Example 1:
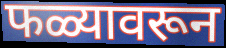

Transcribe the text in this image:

फळ्यावरून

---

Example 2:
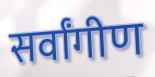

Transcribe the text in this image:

सर्वांगीण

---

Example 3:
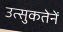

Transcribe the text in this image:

उत्सुकतेनें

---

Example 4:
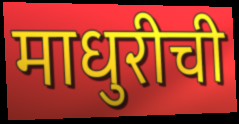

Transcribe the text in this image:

माधुरीची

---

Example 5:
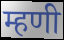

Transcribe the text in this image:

म्हणी